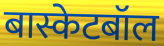
बास्केटबॉल